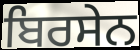
ਬਿਰਸੇਨ